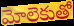
మోలెకుతో